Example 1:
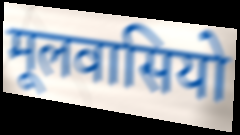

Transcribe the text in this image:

मूलवासियो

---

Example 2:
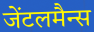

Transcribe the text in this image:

जेंटलमैन्स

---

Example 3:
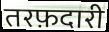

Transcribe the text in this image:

तरफ़दारी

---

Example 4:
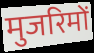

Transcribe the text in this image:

मुजरिमों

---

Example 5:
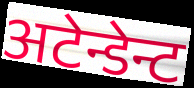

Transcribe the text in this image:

अटेन्डेन्ट